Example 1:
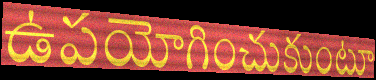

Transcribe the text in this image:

ఉపయోగించుకుంటూ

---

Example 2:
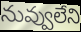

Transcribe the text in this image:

నువ్వులేని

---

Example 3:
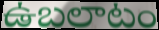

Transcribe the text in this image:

ఉబలాటం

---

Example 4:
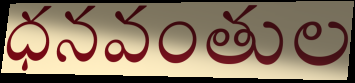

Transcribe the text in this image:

ధనవంతుల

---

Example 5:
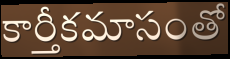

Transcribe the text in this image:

కార్తీకమాసంతో